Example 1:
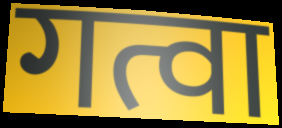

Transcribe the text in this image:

गत्वा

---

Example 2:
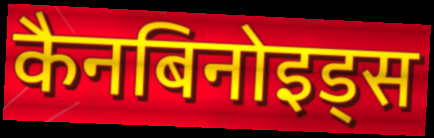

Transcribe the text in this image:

कैनबिनोइड्स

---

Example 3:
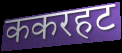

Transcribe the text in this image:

ककरहट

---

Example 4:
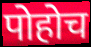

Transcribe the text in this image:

पोहोच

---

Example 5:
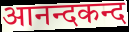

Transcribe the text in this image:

आनन्दकन्द